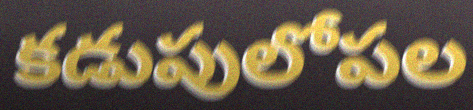
కడుపులోపల